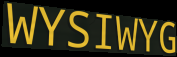
WYSIWYG